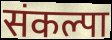
संकल्पा